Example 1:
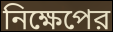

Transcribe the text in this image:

নিক্ষেপের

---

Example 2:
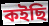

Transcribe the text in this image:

কইছি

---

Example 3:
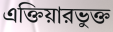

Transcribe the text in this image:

এক্তিয়ারভুক্ত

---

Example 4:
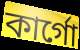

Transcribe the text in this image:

কার্গো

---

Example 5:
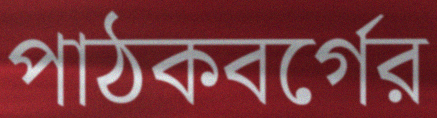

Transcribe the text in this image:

পাঠকবর্গের